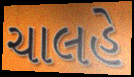
ચાલહે